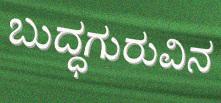
ಬುದ್ಧಗುರುವಿನ